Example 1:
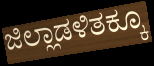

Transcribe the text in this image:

ಜಿಲ್ಲಾಡಳಿತಕ್ಕೂ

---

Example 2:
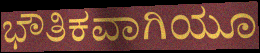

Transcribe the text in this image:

ಭೌತಿಕವಾಗಿಯೂ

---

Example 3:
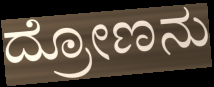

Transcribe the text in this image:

ದ್ರೋಣನು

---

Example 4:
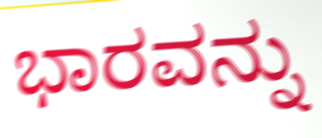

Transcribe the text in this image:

ಭಾರವನ್ನು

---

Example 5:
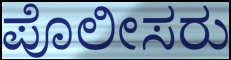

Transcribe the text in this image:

ಪೊಲೀಸರು